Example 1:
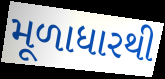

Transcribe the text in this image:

મૂળાધારથી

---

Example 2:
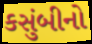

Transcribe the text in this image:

કસુંબીનો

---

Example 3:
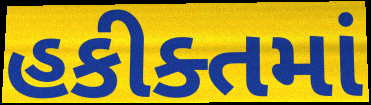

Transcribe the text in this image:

હકીક્તમાં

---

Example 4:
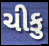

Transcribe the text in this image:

ચીકુ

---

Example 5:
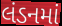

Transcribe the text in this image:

લંડનમાં